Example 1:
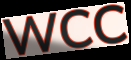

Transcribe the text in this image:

WCC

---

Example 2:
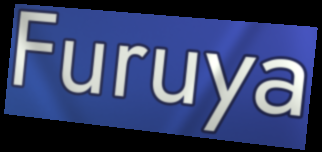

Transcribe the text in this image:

Furuya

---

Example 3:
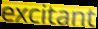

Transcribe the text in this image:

excitant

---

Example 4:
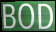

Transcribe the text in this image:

BOD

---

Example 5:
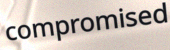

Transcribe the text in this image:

compromised